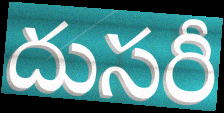
దుసరీ